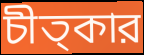
চীত্কার